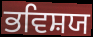
ਭਵਿਸ਼ਯ